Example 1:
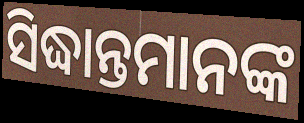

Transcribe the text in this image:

ସିଦ୍ଧାନ୍ତମାନଙ୍କ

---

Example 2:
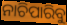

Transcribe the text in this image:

ନାଚିପାରିବୁ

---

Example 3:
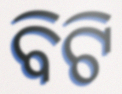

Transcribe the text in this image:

ବିଟି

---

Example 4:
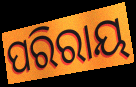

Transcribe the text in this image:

ପରିରାୟ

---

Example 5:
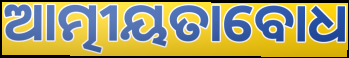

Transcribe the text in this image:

ଆତ୍ମୀୟତାବୋଧ